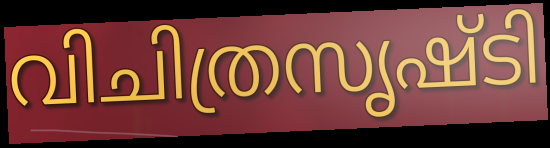
വിചിത്രസൃഷ്ടി